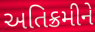
અતિક્રમીને